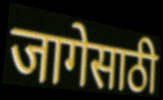
जागेसाठी